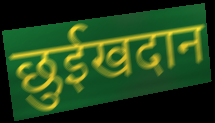
छुईखदान